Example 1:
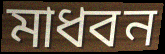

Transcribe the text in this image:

মাধবন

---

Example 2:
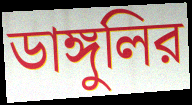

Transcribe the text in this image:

ডাঙ্গুলির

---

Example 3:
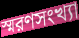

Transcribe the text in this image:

স্মরণসংখ্যা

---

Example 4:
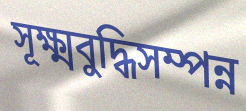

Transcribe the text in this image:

সূক্ষ্মবুদ্ধিসম্পন্ন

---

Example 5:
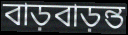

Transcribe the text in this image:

বাড়বাড়ন্ত